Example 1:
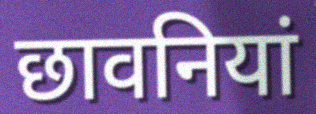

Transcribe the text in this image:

छावनियां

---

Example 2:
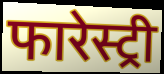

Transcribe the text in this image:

फारेस्ट्री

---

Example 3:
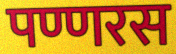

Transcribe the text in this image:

पण्णरस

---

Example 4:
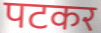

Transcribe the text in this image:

पटकर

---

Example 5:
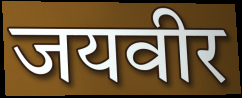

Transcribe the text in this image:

जयवीर